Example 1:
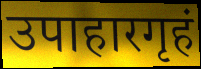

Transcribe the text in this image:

उपाहारगृहं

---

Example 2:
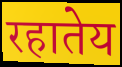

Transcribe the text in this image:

रहातेय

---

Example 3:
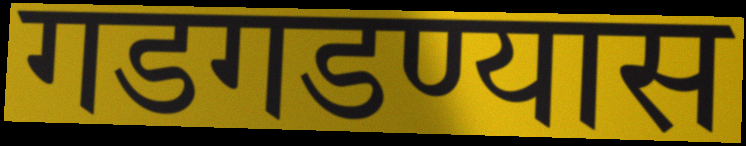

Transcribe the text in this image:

गडगडण्यास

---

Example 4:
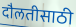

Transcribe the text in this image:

दौलतीसाठी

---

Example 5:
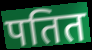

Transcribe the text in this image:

पतित